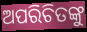
ଅପରିଚିତଙ୍କୁ